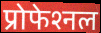
प्रोफेश्नल